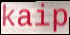
kaip